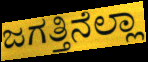
ಜಗತ್ತಿನೆಲ್ಲಾ